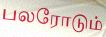
பலரோடும்